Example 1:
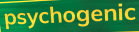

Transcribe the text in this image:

psychogenic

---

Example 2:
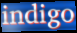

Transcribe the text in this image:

indigo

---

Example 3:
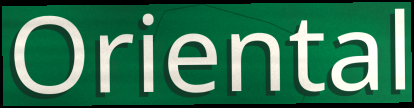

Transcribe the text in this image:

Oriental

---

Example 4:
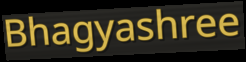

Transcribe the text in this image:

Bhagyashree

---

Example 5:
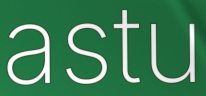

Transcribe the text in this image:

astu